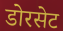
डोरसेट